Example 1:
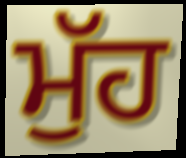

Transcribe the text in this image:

ਮੁੱਹ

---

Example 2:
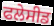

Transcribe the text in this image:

ਫਲੇਸੀਡ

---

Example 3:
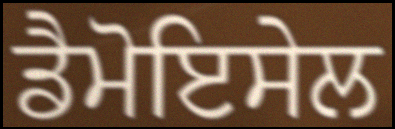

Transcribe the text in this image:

ਡੈਮੋਇਸੇਲ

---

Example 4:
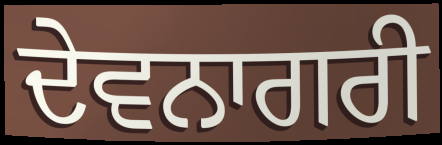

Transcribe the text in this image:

ਦੇਵਨਾਗਰੀ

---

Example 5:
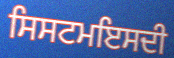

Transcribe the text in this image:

ਸਿਸਟਮਇਸਦੀ